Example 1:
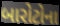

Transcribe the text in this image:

બારોટોના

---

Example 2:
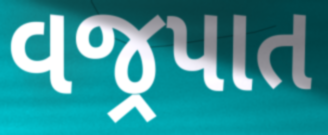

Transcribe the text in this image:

વજ્રપાત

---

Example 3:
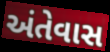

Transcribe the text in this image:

અંતેવાસ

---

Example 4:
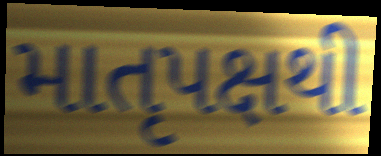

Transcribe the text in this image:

માતૃપક્ષથી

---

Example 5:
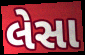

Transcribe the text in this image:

લેસા